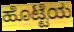
ಹೊಟ್ಟೆಯ